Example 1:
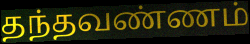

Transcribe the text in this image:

தந்தவண்ணம்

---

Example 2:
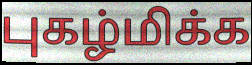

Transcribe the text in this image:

புகழ்மிக்க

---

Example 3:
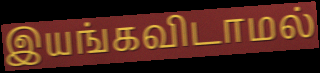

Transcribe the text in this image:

இயங்கவிடாமல்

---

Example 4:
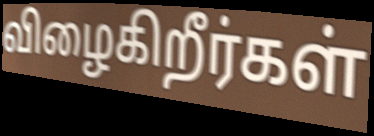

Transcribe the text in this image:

விழைகிறீர்கள்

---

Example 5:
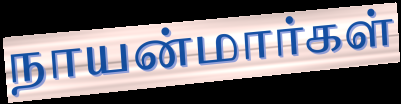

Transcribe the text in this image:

நாயன்மார்கள்